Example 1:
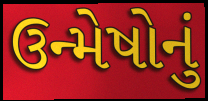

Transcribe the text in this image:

ઉન્મેષોનું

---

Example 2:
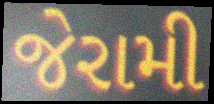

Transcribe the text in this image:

જેરામી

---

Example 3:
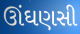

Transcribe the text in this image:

ઊંઘણસી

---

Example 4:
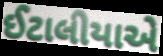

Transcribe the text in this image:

ઈટાલીયાએ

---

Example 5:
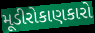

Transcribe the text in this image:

મૂડીરોકાણકારો